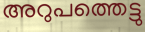
അറുപത്തെട്ടു